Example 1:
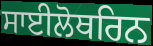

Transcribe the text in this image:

ਸਾਈਲੋਥਰਿਨ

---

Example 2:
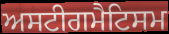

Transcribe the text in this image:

ਅਸਟੀਗਮੈਟਿਸਮ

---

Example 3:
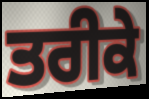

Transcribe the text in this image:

ਤਰੀਕੇ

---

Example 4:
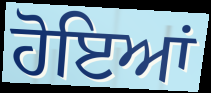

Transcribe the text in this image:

ਹੋਇਆਂ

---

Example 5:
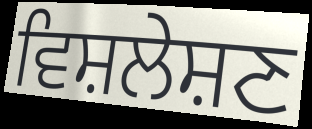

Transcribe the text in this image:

ਵਿਸ਼ਲੇਸ਼ਣ